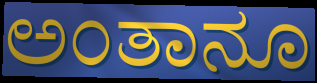
ಅಂತಾನೂ